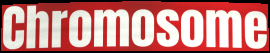
Chromosome